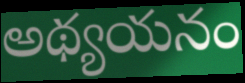
అథ్యయనం